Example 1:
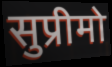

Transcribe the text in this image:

सुप्रीमो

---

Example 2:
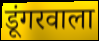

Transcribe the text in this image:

डूंगरवाला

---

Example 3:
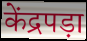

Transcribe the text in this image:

केंद्रपड़ा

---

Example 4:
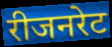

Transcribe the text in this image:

रीजनरेट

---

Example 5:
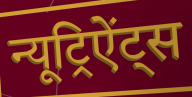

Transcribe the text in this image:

न्यूट्रिऐंट्स